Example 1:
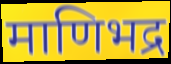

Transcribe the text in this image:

माणिभद्र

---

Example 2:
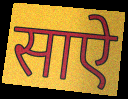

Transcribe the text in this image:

साऐ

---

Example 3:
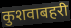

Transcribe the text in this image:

कुशवाबहरी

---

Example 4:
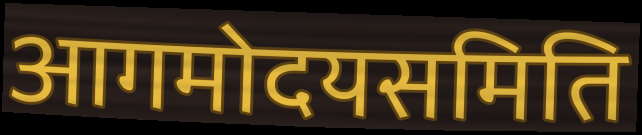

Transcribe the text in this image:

आगमोदयसमिति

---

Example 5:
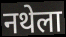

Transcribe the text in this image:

नथेला